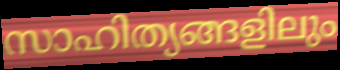
സാഹിത്യങ്ങളിലും